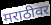
मराठीवर